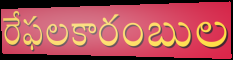
రేఫలకారంబుల